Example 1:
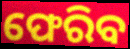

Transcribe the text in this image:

ଫେରିବ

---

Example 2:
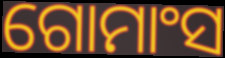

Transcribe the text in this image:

ଗୋମାଂସ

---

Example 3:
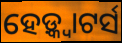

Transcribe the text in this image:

ହେଡ଼୍କ୍ୱାଟର୍ସ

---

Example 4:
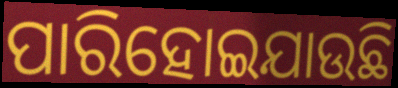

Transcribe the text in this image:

ପାରିହୋଇଯାଉଛି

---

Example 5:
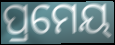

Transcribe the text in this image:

ପ୍ରମେୟ